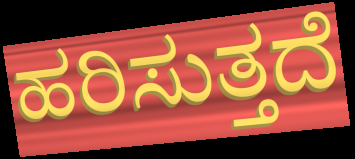
ಹರಿಸುತ್ತದೆ